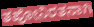
ತಪೋನಿರತನಾಗಿ